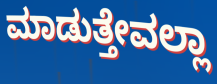
ಮಾಡುತ್ತೇವಲ್ಲಾ